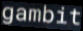
gambit